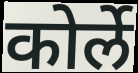
कोर्ले